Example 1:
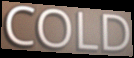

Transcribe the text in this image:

COLD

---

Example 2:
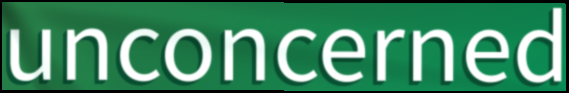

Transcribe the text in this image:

unconcerned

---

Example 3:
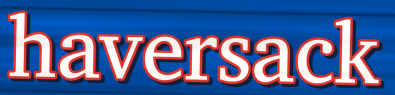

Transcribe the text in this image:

haversack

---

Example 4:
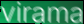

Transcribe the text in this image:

virama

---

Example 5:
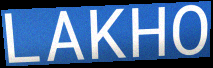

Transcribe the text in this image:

LAKHO